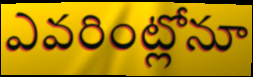
ఎవరింట్లోనూ